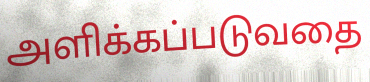
அளிக்கப்படுவதை